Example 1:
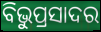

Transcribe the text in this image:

ବିଭୁପ୍ରସାଦର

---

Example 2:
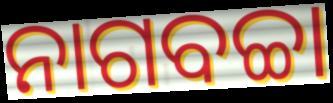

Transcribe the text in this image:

ନାଗବଚ୍ଚା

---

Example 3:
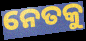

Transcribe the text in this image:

ନେତକୁ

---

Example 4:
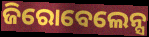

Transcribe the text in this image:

ଜିରୋବେଲେନ୍ସ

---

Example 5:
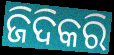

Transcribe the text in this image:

ଜିଦିକରି